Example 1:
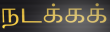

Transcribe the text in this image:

நடக்கக்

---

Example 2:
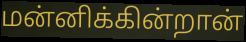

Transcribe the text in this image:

மன்னிக்கின்றான்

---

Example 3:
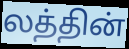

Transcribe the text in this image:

லத்தின்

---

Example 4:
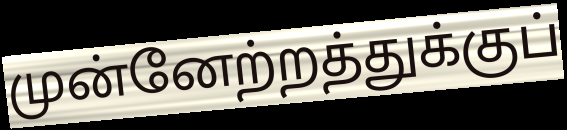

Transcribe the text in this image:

முன்னேற்றத்துக்குப்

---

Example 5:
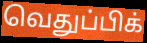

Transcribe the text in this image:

வெதுப்பிக்